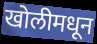
खोलीमधून